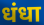
धंधा